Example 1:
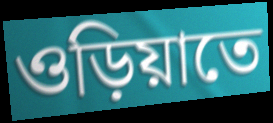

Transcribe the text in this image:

ওড়িয়াতে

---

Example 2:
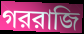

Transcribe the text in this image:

গররাজি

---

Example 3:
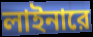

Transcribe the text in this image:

লাইনারে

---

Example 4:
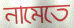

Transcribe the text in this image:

নামেতে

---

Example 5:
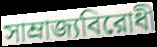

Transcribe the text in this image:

সাম্রাজ্যবিরোধী